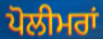
ਪੋਲੀਮਰਾਂ